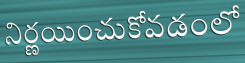
నిర్ణయించుకోవడంలో